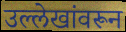
उल्लेखांवरून